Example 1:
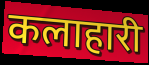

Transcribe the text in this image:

कलाहारी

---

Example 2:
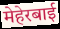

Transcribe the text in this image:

मेहेरबाई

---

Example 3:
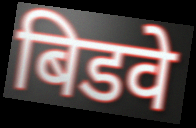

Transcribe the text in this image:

बिडवे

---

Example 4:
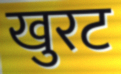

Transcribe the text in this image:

खुरट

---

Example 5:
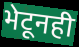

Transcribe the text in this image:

भेटूनही